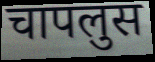
चापलुस